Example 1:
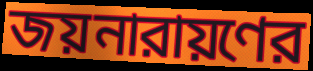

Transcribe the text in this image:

জয়নারায়ণের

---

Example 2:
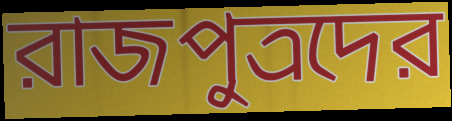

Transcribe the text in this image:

রাজপুত্রদের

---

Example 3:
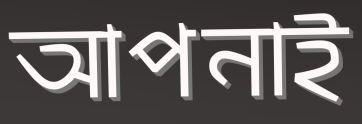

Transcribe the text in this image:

আপনাই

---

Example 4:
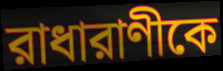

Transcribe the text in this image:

রাধারাণীকে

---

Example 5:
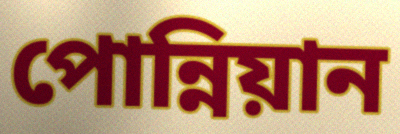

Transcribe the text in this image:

পোন্নিয়ান